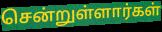
சென்றுள்ளார்கள்